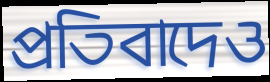
প্রতিবাদেও